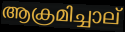
ആക്രമിച്ചാല്